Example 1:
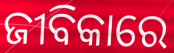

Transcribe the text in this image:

ଜୀବିକାରେ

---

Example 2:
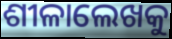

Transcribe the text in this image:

ଶୀଳାଲେଖକୁ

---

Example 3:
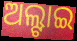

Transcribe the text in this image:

ଅଲ୍ଟାଇ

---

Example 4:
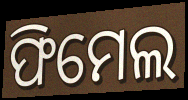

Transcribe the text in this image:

ଫିମେଲ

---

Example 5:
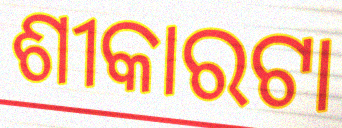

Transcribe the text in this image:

ଶୀକାରଟା